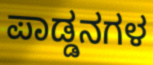
ಪಾಡ್ಡನಗಳ